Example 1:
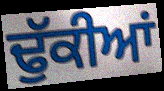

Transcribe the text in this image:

ਢੁੱਕੀਆਂ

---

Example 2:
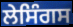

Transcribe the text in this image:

ਲੇਸਿੰਗਸ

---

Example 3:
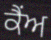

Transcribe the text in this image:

ਕੈਂਅ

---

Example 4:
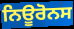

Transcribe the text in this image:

ਨਿਊਰੋਨਸ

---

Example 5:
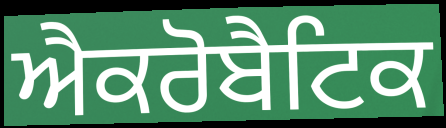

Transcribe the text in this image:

ਐਕਰੋਬੈਟਿਕ